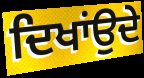
ਦਿਖਾਂਉਦੇ